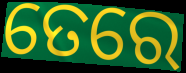
ତେରେ